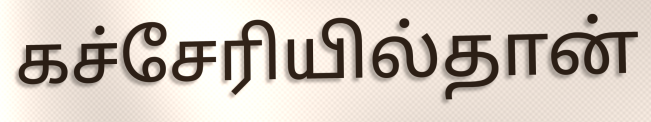
கச்சேரியில்தான்